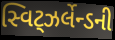
સ્વિટ્ઝર્લેન્ડની